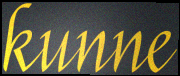
kunne